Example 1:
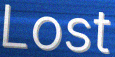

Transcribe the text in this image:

Lost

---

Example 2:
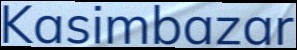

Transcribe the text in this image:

Kasimbazar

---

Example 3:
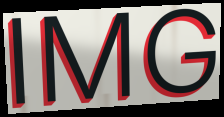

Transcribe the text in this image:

IMG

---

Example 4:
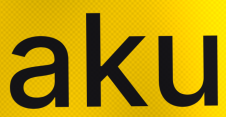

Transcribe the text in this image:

aku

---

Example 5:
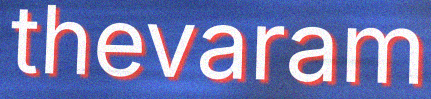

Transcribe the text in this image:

thevaram